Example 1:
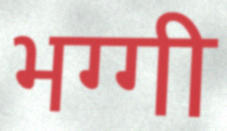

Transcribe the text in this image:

भग्गी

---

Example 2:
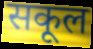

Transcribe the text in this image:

सकूल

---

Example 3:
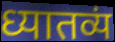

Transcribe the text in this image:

ध्यातव्यं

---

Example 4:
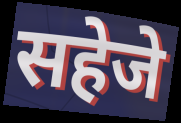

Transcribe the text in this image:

सहेजे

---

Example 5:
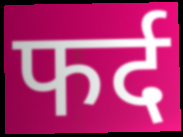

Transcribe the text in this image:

फर्द